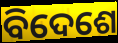
ବିଦେଶେ